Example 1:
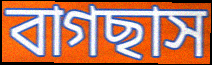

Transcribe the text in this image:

বাগছাস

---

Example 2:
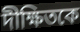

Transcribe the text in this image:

দীক্ষিতকে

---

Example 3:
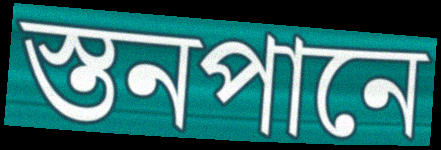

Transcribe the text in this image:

স্তনপানে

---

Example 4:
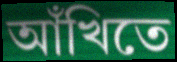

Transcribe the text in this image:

আঁখিতে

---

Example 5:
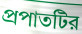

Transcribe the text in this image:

প্রপাতটির